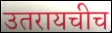
उतरायचीच